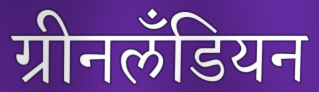
ग्रीनलॅंडियन